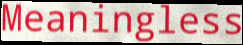
Meaningless